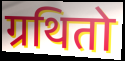
ग्रथितो